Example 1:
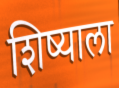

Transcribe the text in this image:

शिष्याला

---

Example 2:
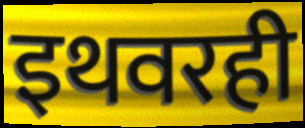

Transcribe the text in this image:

इथवरही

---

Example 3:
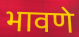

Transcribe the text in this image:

भावणे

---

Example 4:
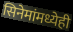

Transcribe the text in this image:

सिनेमांमध्येही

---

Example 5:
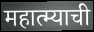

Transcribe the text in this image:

महात्म्याची